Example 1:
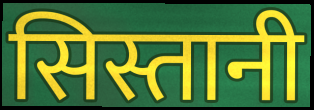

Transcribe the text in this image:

सिस्तानी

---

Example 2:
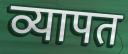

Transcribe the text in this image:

व्यापत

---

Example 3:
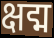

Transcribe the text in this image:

क्षद्म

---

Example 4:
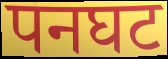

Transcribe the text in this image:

पनघट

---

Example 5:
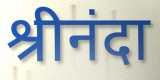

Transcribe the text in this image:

श्रीनंदा